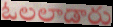
ఓలలాడారు